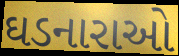
ઘડનારાઓ